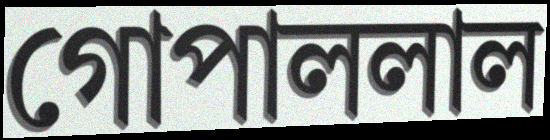
গোপাললাল